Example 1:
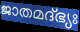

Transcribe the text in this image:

ജാതമദ്ഭ്യഃ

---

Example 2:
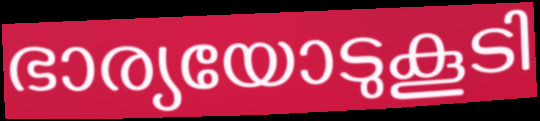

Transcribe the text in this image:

ഭാര്യയോടുകൂടി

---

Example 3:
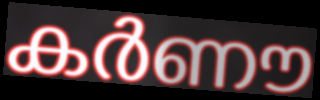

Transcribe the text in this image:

കർണൗ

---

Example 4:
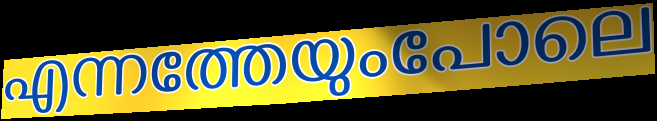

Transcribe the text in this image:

എന്നത്തേയുംപോലെ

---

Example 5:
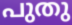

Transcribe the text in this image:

പുതു